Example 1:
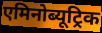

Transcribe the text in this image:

एमिनोब्यूट्रिक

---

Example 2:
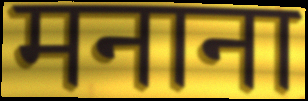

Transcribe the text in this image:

मनाना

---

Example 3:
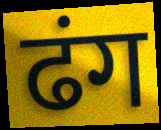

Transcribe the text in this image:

ढंग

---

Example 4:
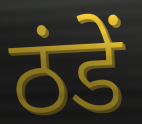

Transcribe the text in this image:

ठंडें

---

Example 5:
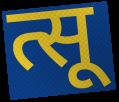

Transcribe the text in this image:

त्सू